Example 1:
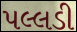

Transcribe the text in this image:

પલ્લડી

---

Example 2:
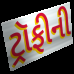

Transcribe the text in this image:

ટ્રૉફીની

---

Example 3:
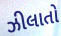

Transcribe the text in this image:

ઝીલાતો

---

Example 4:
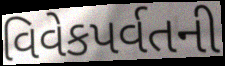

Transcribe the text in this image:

વિવેકપર્વતની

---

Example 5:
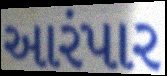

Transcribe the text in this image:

આરંપાર